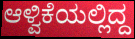
ಆಳ್ವಿಕೆಯಲ್ಲಿದ್ದ